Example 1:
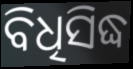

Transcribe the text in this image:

ବିଧିସିଦ୍ଧ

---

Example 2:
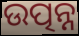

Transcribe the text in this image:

ଉତ୍ପନ୍ନ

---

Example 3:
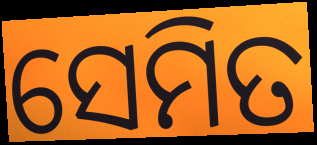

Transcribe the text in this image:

ସେମିତ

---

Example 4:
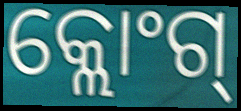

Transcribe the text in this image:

କ୍ଲୋଂଗ୍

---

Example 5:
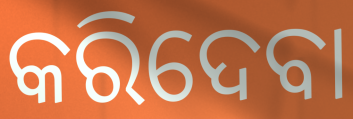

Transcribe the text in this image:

କରିଦେବା